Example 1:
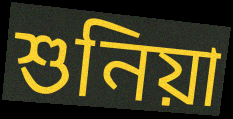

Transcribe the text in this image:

শুনিয়া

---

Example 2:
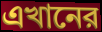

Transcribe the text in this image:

এখানের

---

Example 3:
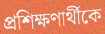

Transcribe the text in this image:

প্রশিক্ষণার্থীকে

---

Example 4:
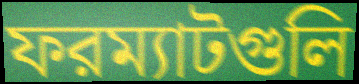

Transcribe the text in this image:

ফরম্যাটগুলি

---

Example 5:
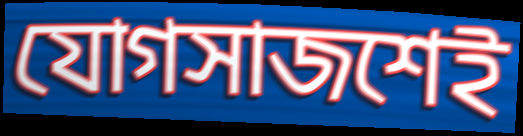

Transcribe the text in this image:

যোগসাজশেই